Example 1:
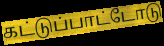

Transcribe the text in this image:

கட்டுப்பாட்டோடு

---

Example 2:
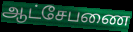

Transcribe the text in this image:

ஆட்சேபணை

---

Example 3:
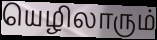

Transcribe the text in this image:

யெழிலாரும்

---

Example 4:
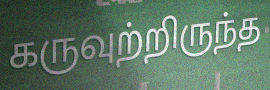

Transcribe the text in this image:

கருவுற்றிருந்த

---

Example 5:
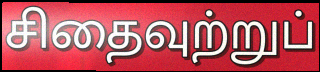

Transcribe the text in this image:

சிதைவுற்றுப்